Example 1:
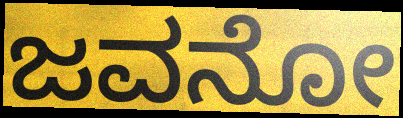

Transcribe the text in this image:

ಜವನೋ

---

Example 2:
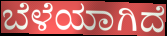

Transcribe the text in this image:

ಬೆಳೆಯಾಗಿದೆ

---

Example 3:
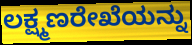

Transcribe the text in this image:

ಲಕ್ಷ್ಮಣರೇಖೆಯನ್ನು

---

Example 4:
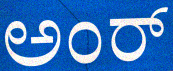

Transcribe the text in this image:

ಅಂರ್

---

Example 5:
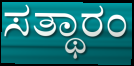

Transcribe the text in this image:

ಸತ್ಥಾರಂ